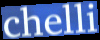
chelli